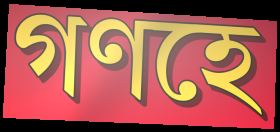
গণহে